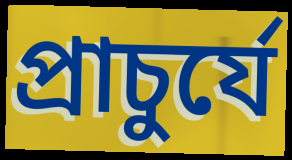
প্রাচুর্যে